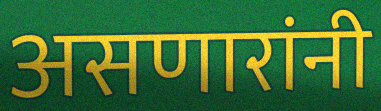
असणारांनी